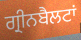
ਗ੍ਰੀਨਬੈਲਟਾਂ